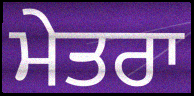
ਮੇਤਰਾ